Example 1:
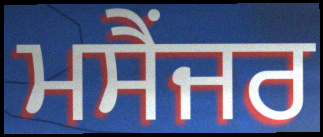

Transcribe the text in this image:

ਮਸੈਂਜਰ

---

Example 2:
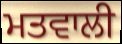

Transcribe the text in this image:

ਮਤਵਾਲੀ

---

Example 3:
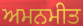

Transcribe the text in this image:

ਅਮਨਮੀਤ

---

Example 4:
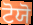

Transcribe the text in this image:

ਟੋਯੋ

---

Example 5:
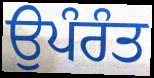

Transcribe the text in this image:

ਉਪੰਰੰਤ